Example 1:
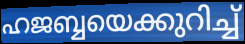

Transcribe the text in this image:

ഹജബ്ബയെക്കുറിച്ച്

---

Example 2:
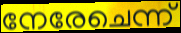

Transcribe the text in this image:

നേരേചെന്ന്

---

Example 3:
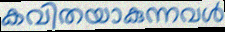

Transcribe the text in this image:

കവിതയാകുന്നവൾ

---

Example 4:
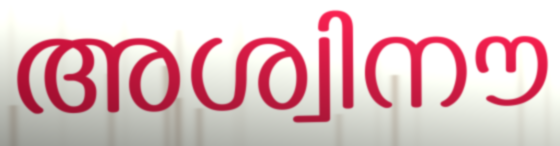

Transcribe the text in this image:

അശ്വിനൗ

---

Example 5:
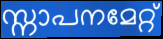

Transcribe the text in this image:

സ്നാപനമേറ്റ്